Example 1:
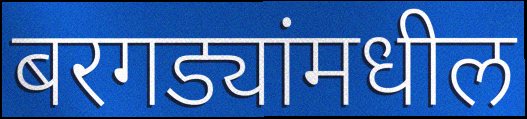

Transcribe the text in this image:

बरगड्यांमधील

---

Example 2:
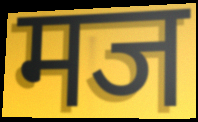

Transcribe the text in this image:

मज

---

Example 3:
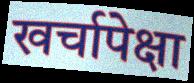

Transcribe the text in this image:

खर्चापेक्षा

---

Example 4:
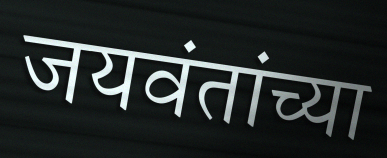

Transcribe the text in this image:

जयवंतांच्या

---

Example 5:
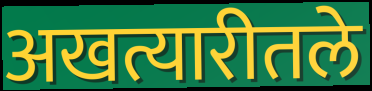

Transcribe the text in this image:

अखत्यारीतले